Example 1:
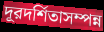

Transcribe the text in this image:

দূরদর্শিতাসম্পন্ন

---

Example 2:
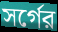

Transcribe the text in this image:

সর্গের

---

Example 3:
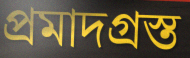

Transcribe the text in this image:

প্রমাদগ্রস্ত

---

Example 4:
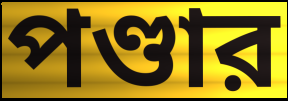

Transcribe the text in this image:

পণ্ডার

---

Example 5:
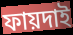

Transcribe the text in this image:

ফায়দাই